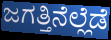
ಜಗತ್ತಿನೆಲ್ಲೆಡೆ